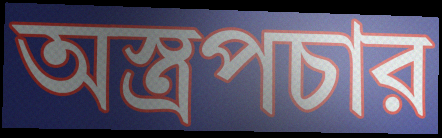
অস্ত্রপচার